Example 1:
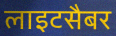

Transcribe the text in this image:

लाइटसैबर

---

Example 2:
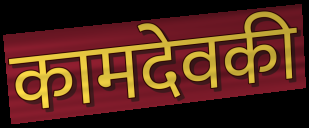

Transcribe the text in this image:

कामदेवकी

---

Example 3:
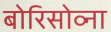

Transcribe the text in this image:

बोरिसोव्ना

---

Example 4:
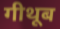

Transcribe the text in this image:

गीथूब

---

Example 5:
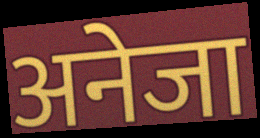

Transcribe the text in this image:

अनेजा